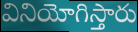
వినియోగిస్తారు